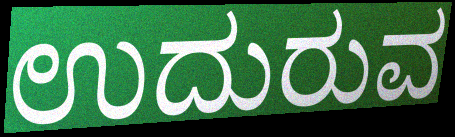
ಉದುರುವ